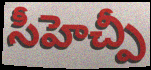
సీహెచ్పీ